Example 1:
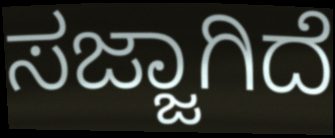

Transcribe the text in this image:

ಸಜ್ಜಾಗಿದೆ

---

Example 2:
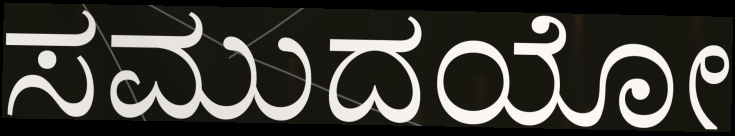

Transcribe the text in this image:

ಸಮುದಯೋ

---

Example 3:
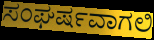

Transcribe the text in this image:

ಸಂಘರ್ಷವಾಗಲಿ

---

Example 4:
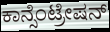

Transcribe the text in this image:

ಕಾನ್ಸೆಂಟ್ರೇಷನ್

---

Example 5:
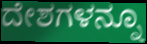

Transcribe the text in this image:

ದೇಶಗಳನ್ನೂ